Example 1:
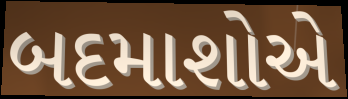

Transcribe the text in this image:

બદમાશોએ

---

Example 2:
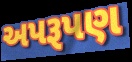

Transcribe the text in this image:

અપરૂપણ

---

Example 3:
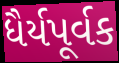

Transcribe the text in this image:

ધૈર્યપૂર્વક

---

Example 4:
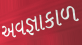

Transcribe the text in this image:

અવજ્ઞાકાળ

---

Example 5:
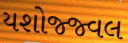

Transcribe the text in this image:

યશોજ્જ્વલ